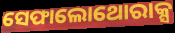
ସେଫାଲୋଥୋରାକ୍ସ